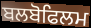
ਬਲਬੋਫਿਲਮ